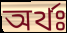
অৰ্থঃ